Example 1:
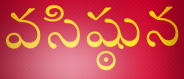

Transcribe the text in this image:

వసిష్ఠున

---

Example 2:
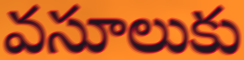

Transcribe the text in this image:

వసూలుకు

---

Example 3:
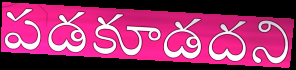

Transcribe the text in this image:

పడకూడదని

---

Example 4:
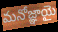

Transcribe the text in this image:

మనోజ్ఞాయై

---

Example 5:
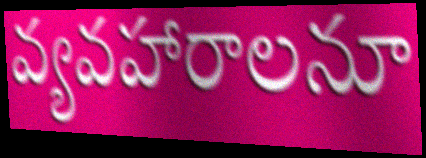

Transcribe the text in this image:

వ్యవహారాలనూ